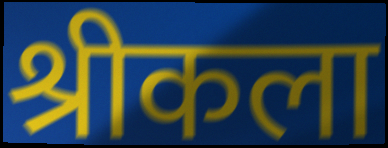
श्रीकला